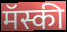
मॅस्की